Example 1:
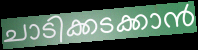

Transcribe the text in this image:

ചാടിക്കടക്കാൻ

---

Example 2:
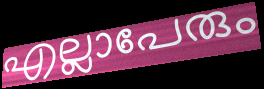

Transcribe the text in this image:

എല്ലാപേരും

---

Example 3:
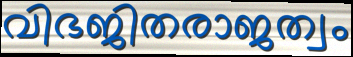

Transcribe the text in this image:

വിഭജിതരാജത്വം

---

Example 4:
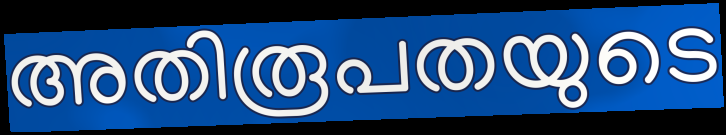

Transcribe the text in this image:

അതിരൂപതയുടെ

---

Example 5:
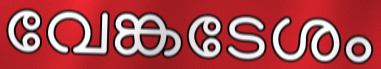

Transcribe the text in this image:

വേങ്കടേശം